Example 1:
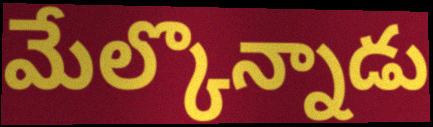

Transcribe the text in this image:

మేల్కొన్నాడు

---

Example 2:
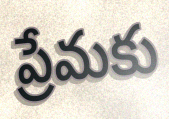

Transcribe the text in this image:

ప్రేమకు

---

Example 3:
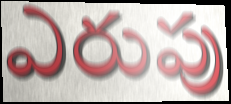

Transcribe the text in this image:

ఎరుపు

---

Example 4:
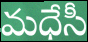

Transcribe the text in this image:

మధేసీ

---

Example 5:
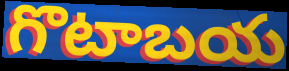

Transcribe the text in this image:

గొటాబయ